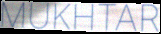
MUKHTAR